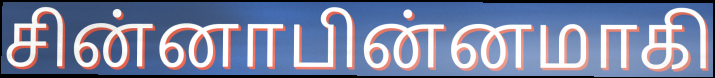
சின்னாபின்னமாகி